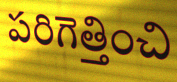
పరిగెత్తించి